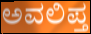
ಅವಲಿಪ್ತ